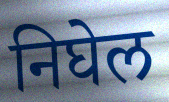
निघेल